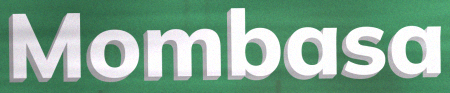
Mombasa